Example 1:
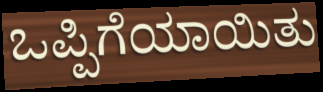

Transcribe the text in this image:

ಒಪ್ಪಿಗೆಯಾಯಿತು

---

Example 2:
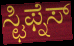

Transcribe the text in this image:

ಸ್ಟಿಫ್ನೆಸ್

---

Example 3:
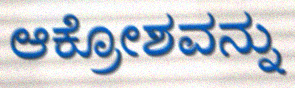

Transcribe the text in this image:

ಆಕ್ರೋಶವನ್ನು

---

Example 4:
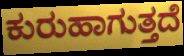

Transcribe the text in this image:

ಕುರುಹಾಗುತ್ತದೆ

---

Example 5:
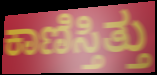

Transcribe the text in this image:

ಕಾಣಿಸ್ತಿತ್ತು